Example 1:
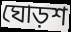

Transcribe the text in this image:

ঘোড়শ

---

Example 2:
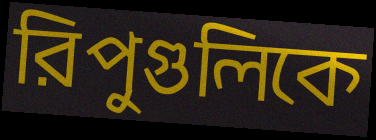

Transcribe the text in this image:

রিপুগুলিকে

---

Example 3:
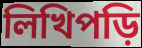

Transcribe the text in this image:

লিখিপড়ি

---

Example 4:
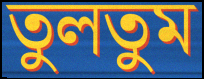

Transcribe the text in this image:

তুলতুম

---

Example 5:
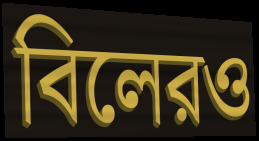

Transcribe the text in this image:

বিলেরও